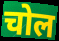
चोल